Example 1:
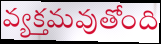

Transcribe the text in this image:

వ్యక్తమవుతోంది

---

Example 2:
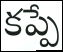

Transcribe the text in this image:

కప్పే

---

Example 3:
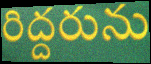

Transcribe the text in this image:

రిద్దరును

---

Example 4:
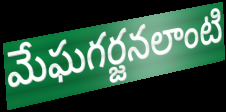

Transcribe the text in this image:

మేఘగర్జనలాంటి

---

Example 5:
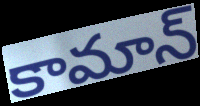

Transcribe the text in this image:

కామాన్